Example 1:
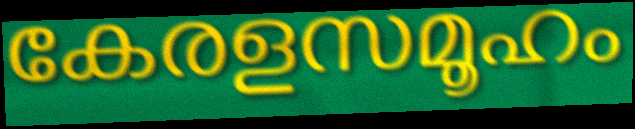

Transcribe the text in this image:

കേരളസമൂഹം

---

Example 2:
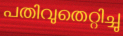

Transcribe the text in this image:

പതിവുതെറ്റിച്ചു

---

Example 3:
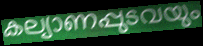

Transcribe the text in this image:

കല്യാണപ്പുടവയും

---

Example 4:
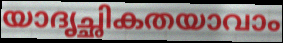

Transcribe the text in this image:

യാദൃച്ഛികതയാവാം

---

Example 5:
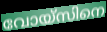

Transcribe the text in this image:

വോയ്സിനെ